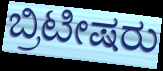
ಬ್ರಿಟೀಷರು